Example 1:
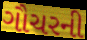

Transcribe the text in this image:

ગૌચરની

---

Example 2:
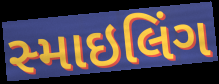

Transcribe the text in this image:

સ્માઇલિંગ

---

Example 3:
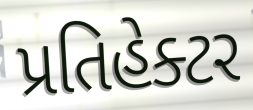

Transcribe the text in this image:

પ્રતિહેક્ટર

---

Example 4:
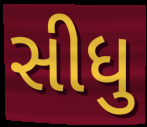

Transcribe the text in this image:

સીધુ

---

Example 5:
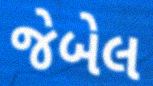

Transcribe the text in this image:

જેબેલ